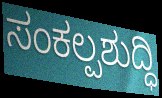
ಸಂಕಲ್ಪಶುದ್ಧಿ